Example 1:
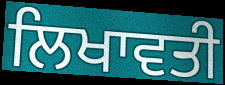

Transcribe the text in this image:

ਲਿਖਾਵਤੀ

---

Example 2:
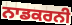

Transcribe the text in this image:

ਨਾਡਕਰਨੀ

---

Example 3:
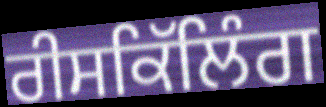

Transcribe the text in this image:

ਰੀਸਕਿੱਲਿੰਗ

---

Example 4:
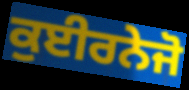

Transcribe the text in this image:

ਕੁਈਰਨੇਜੋ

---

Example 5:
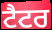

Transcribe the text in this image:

ਟੈਟਰ